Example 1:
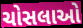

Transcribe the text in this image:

ચોસલાઓ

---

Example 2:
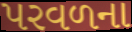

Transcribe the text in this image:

પરવળના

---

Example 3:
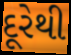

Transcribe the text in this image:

દૂરેથી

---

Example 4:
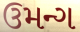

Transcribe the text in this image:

ઉમન્ગ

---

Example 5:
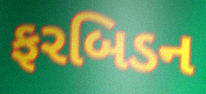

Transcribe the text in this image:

ફરબિડન